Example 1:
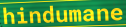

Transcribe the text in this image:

hindumane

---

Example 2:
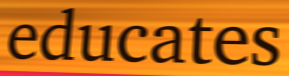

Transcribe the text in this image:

educates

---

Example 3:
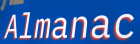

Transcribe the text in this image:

Almanac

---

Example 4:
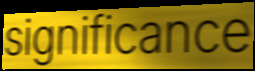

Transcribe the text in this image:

significance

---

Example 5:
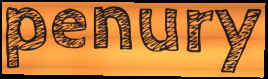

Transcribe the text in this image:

penury